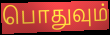
பொதுவும்